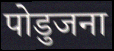
पोडुजना